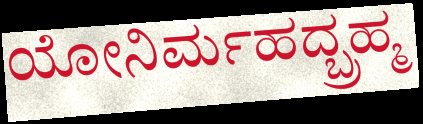
ಯೋನಿರ್ಮಹದ್ಬ್ರಹ್ಮ